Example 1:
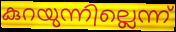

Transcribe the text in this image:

കുറയുന്നില്ലെന്ന്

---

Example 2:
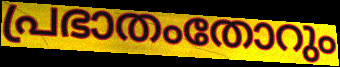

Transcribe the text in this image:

പ്രഭാതംതോറും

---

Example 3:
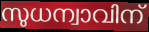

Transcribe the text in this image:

സുധന്വാവിന്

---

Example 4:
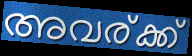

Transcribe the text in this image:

അവര്ക്ക്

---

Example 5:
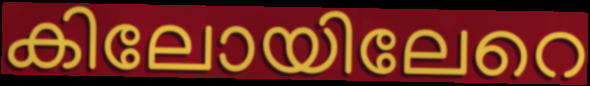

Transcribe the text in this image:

കിലോയിലേറെ